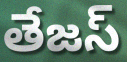
తేజస్